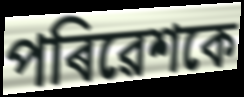
পৰিৱেশকে